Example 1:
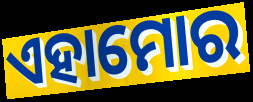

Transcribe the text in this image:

ଏହାମୋର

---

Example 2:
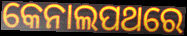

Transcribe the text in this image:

କେନାଲପଥରେ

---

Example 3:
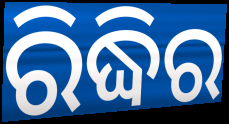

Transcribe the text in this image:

ରିଦ୍ଧିର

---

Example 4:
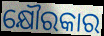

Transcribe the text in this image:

କ୍ଷୌରକାର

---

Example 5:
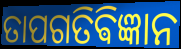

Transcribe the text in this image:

ତାପଗତିଵିଜ୍ଞାନ